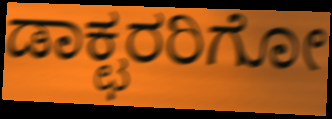
ಡಾಕ್ಟರರಿಗೋ